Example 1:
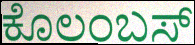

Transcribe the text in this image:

ಕೊಲಂಬಸ್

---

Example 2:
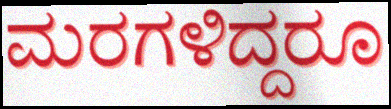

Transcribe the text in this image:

ಮರಗಳಿದ್ದರೂ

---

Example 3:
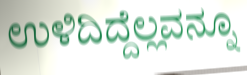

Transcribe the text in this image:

ಉಳಿದಿದ್ದೆಲ್ಲವನ್ನೂ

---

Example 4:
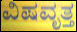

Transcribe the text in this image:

ವಿಷವೃತ್ತ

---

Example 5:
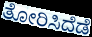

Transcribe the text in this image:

ತೋರಿಸಿದೆಡೆ